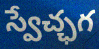
స్వేచ్ఛగ